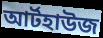
আর্টহাউজ